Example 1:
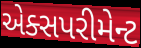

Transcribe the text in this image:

એક્સપરીમેન્ટ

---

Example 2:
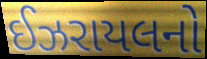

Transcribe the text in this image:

ઈઝરાયલનો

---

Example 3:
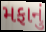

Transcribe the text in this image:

મફાનું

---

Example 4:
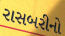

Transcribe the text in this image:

રાસબરીનો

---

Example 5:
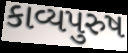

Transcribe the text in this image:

કાવ્યપુરુષ